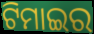
ଟିମାଇର